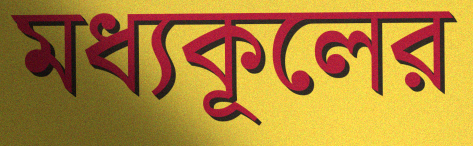
মধ্যকূলের